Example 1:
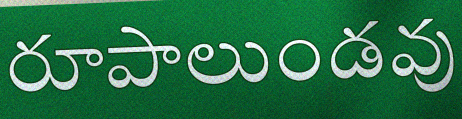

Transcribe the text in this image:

రూపాలుండవు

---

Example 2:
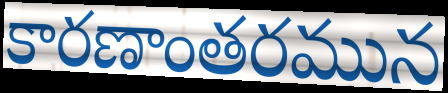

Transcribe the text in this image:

కారణాంతరమున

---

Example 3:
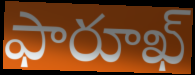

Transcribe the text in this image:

ఫారూఖ్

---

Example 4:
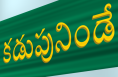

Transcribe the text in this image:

కడుపునిండే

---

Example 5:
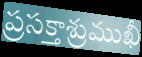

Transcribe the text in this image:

ప్రసక్తాశ్రుముఖీ